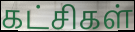
கட்சிகள்